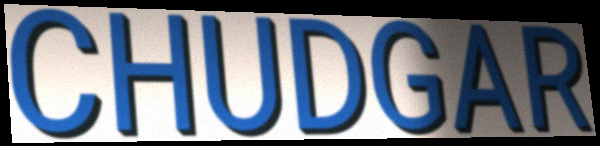
CHUDGAR